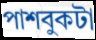
পাশবুকটা